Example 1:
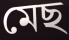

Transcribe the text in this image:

মেছ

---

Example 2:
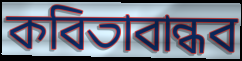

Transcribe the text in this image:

কবিতাবান্ধব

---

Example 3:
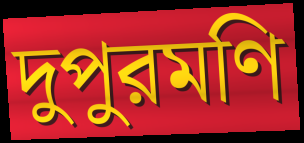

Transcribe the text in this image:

দুপুরমণি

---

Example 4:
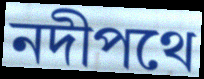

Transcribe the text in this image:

নদীপথে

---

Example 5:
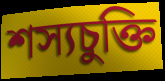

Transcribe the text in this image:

শস্যচুক্তি